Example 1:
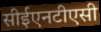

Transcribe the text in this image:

सीईएनटीएसी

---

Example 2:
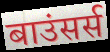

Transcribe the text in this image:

बाउंसर्स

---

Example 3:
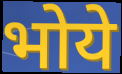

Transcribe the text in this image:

भोये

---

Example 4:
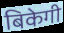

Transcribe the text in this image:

बिकेगी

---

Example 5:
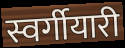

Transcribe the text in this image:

स्वर्गीयारी